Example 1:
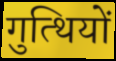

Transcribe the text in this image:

गुत्थियों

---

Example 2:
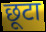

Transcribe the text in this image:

छूटा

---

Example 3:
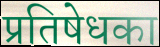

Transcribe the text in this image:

प्रतिषेधका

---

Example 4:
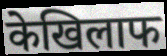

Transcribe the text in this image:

केखिलाफ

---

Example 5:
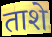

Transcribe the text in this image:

ताशे